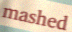
mashed